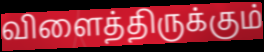
விளைத்திருக்கும்